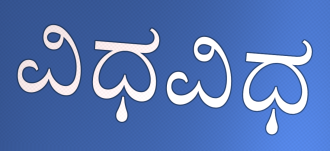
ವಿಧವಿಧ